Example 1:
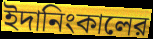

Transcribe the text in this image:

ইদানিংকালের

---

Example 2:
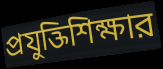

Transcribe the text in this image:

প্রযুক্তিশিক্ষার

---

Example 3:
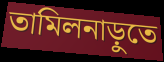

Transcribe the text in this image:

তামিলনাড়ুতে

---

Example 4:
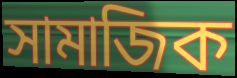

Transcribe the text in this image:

সামাজিক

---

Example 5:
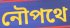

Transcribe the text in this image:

নৌপথে